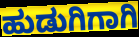
ಹುಡುಗಿಗಾಗಿ